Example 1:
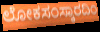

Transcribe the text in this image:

ಲೋಕಸಂಸ್ಕಾರದಿಂ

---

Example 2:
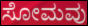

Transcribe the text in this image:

ಸೋಮವು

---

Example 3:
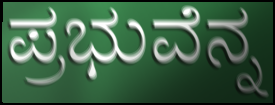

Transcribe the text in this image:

ಪ್ರಭುವೆನ್ನ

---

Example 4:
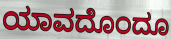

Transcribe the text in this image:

ಯಾವದೊಂದೂ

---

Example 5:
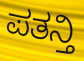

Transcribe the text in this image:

ಪತನ್ತಿ